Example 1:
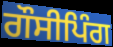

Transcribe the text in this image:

ਗੌਸੀਪਿੰਗ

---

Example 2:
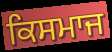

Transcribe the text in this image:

ਕਿਸਮਾਜ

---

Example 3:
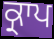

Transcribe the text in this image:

ਕ੍ਰਾਪ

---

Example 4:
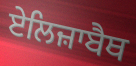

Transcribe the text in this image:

ਏਲਿਜ਼ਾਬੈਥ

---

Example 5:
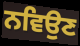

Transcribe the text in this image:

ਨਵਿਉਣ